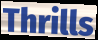
Thrills